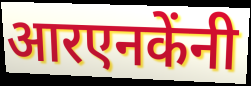
आरएनकेंनी